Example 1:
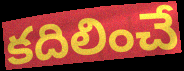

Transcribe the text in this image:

కదిలించే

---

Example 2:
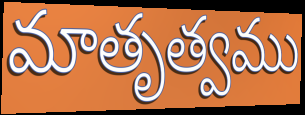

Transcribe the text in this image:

మాతృత్వము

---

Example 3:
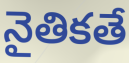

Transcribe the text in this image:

నైతికతే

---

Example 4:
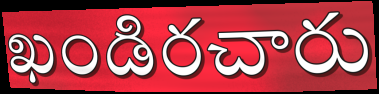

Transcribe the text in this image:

ఖండిరచారు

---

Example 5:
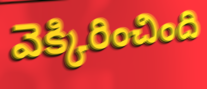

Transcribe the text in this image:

వెక్కిరించింది